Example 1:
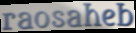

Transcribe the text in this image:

raosaheb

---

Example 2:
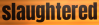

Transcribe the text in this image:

slaughtered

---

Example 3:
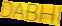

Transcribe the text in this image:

DABHI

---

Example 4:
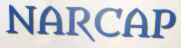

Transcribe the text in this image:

NARCAP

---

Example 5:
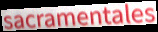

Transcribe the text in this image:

sacramentales